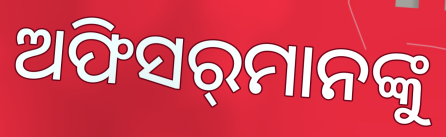
ଅଫିସର୍‌ମାନଙ୍କୁ